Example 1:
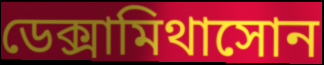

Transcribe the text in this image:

ডেক্সামিথাসোন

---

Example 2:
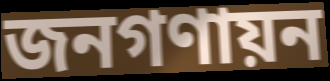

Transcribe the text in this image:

জনগণায়ন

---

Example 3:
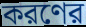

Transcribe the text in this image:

করণের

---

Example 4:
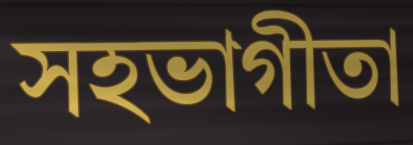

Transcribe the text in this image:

সহভাগীতা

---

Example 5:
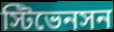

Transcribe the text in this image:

স্টিভেনসন